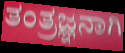
ತಂತ್ರಜ್ಞನಾಗಿ